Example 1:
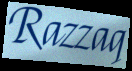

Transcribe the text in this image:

Razzaq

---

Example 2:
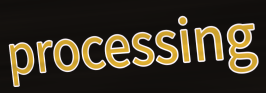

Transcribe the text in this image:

processing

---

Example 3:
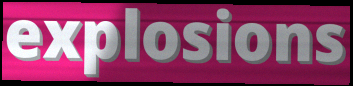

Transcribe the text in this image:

explosions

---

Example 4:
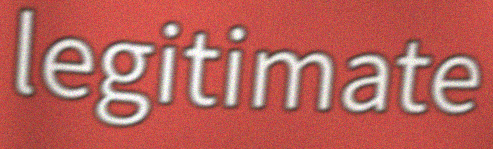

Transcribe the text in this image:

legitimate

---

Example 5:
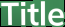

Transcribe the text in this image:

Title